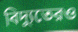
বিদ্যুতেরও